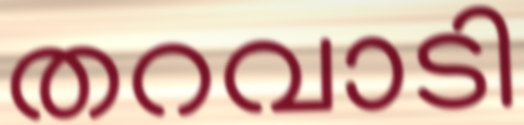
തറവാടി